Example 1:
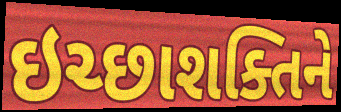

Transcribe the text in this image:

ઇચ્છાશક્તિને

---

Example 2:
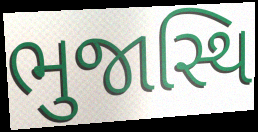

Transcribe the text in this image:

ભુજાસ્થિ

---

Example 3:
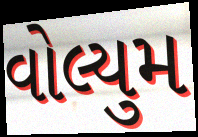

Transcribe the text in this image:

વોલ્યુમ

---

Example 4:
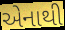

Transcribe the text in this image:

એનાથી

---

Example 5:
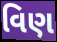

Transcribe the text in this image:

વિણ